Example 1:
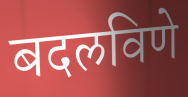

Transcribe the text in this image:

बदलविणे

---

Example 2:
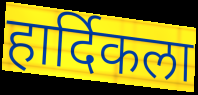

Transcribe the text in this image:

हार्दिकला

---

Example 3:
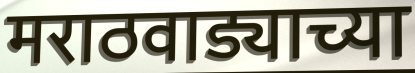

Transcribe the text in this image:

मराठवाड्याच्या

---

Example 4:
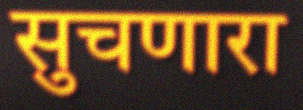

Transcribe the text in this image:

सुचणारा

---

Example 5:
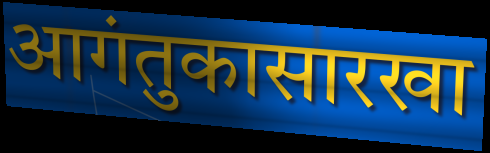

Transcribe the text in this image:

आगंतुकासारखा